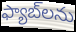
ఫ్యాబ్‌లను